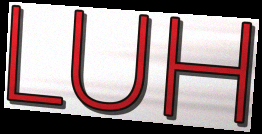
LUH